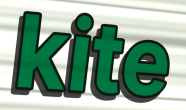
kite